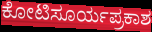
ಕೋಟಿಸೂರ್ಯಪ್ರಕಾಶ